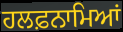
ਹਲਫ਼ਨਾਮਿਆਂ